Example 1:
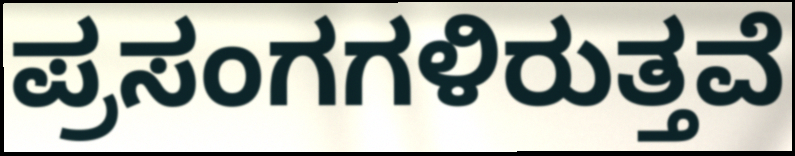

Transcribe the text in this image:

ಪ್ರಸಂಗಗಳಿರುತ್ತವೆ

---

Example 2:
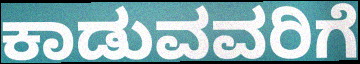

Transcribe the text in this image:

ಕಾಡುವವರಿಗೆ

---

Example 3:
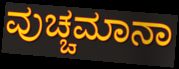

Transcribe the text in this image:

ವುಚ್ಚಮಾನಾ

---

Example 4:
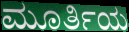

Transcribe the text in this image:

ಮೂರ್ತಿಯ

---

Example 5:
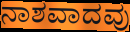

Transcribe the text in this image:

ನಾಶವಾದವು